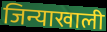
जिन्याखाली